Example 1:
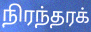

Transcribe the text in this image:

நிரந்தரக்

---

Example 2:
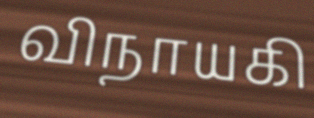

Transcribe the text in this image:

விநாயகி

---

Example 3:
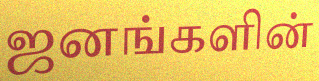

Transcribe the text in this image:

ஜனங்களின்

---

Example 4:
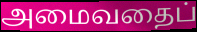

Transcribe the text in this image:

அமைவதைப்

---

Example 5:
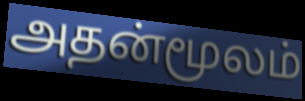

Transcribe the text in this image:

அதன்மூலம்